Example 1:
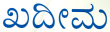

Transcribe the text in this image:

ಖದೀಮ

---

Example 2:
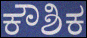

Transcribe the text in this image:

ಕೌಶಿಕ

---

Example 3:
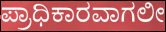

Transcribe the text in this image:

ಪ್ರಾಧಿಕಾರವಾಗಲೀ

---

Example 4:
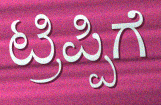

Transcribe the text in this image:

ಟ್ರಿಪ್ಪಿಗೆ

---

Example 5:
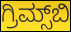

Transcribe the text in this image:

ಗ್ರಿಮ್ಸ್‌ಬಿ